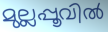
മുല്ലപ്പൂവിൽ